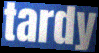
tardy